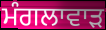
ਮੰਗਲਾਵਾੜ